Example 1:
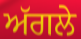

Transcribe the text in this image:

ਅੱਗਲੇ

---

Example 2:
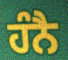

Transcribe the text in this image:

ਹੰਨੈ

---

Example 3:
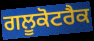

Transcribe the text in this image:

ਗਲੂਕੋਟਰੈਕ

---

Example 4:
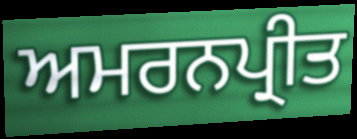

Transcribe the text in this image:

ਅਮਰਨਪ੍ਰੀਤ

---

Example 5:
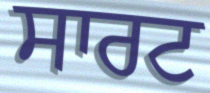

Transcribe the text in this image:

ਸਾਰਟ